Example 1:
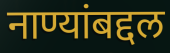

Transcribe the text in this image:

नाण्यांबद्दल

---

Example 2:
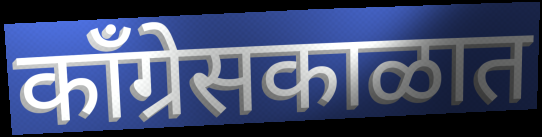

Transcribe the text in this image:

काँग्रेसकाळात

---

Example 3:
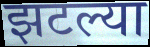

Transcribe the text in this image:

झटल्या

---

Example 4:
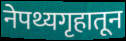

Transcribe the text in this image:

नेपथ्यगृहातून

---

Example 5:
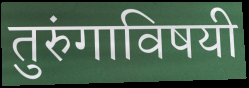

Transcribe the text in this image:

तुरुंगाविषयी